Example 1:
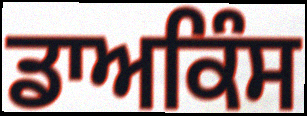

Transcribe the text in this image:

ਡਾਅਕਿੰਸ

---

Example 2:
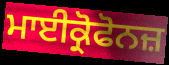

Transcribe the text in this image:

ਮਾਈਕ੍ਰੋਫੋਨਜ਼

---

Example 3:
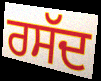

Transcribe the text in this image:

ਰਸੱਦ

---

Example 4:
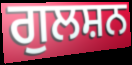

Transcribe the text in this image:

ਗੁਲਸ਼ਨ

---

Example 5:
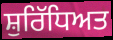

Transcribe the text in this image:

ਸ਼ੁਰਿੱਧਿਅਤ